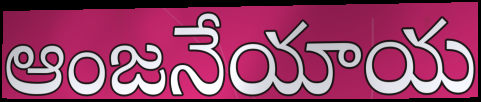
ఆంజనేయాయ